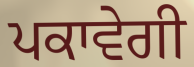
ਪਕਾਵੇਗੀ